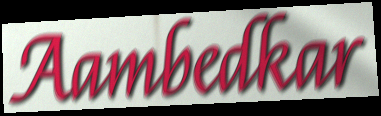
Aambedkar